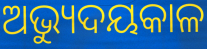
ଅଭ୍ୟୁଦୟକାଳ